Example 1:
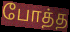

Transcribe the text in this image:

போத்த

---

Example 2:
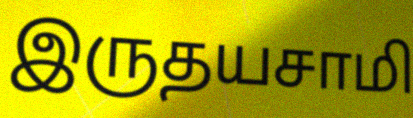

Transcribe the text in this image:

இருதயசாமி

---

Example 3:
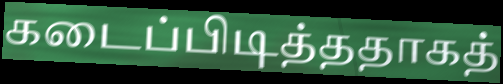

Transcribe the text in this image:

கடைப்பிடித்ததாகத்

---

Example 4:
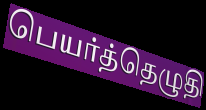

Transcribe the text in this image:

பெயர்த்தெழுதி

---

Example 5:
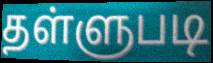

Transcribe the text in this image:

தள்ளுபடி